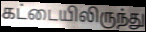
கட்டையிலிருந்து